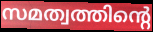
സമത്വത്തിന്റെ